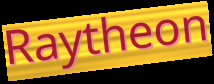
Raytheon